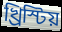
খ্রিস্টিয়